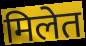
मिलेत